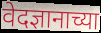
वेदज्ञानाच्या